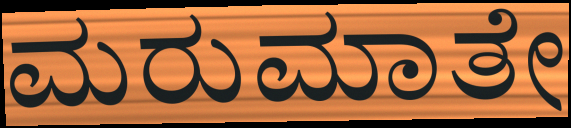
ಮರುಮಾತೇ